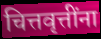
चित्तवृत्तींना